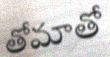
తోమాతో